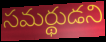
సమర్థుడని